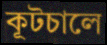
কূটচালে